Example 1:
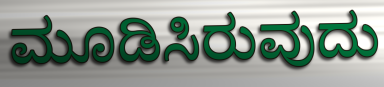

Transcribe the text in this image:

ಮೂಡಿಸಿರುವುದು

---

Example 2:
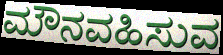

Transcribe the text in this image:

ಮೌನವಹಿಸುವ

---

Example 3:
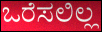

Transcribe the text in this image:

ಒರೆಸಲಿಲ್ಲ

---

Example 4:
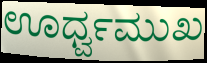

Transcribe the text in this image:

ಊರ್ಧ್ವಮುಖ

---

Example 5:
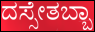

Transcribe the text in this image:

ದಸ್ಸೇತಬ್ಬಾ